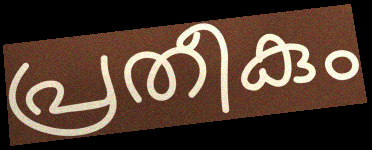
പ്രതീകും